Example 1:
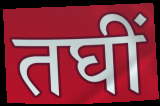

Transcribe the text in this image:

तघीं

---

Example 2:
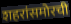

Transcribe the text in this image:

शहरांसमोरची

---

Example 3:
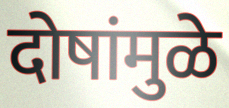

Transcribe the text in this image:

दोषांमुळे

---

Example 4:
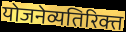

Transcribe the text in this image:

योजनेव्यतिरिक्त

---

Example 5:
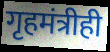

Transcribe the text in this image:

गृहमंत्रीही